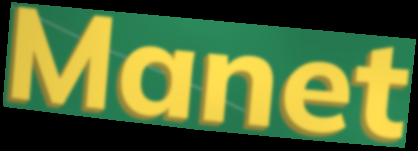
Manet